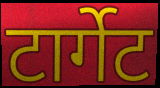
टार्गेट